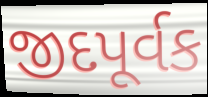
જીદપૂર્વક